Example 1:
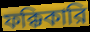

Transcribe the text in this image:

ফক্কিকারি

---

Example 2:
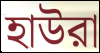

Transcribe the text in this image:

হাউরা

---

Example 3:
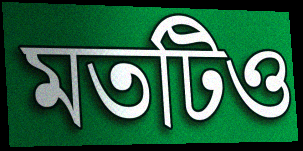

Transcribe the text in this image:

মতটিও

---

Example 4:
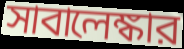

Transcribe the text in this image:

সাবালেঙ্কার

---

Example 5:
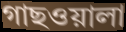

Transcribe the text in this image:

গাছওয়ালা